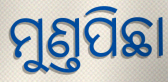
ମୁଣ୍ତପିଛା